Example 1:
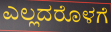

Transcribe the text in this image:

ಎಲ್ಲದರೊಳಗೆ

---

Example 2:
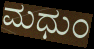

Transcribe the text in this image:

ಮಧುಂ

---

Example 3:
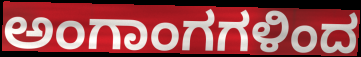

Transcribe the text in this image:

ಅಂಗಾಂಗಗಳಿಂದ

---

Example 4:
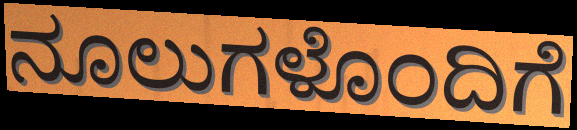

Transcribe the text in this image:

ನೂಲುಗಳೊಂದಿಗೆ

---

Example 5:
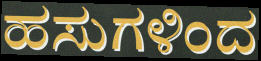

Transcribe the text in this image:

ಹಸುಗಳಿಂದ